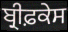
ਬ੍ਰੀਫ਼ਕੇਸ